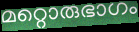
മറ്റൊരുഭാഗം